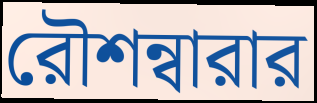
রৌশন্বারার